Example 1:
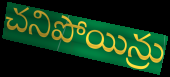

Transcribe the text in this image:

చనిపోయిన్రు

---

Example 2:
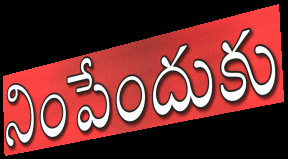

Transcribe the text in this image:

నింపేందుకు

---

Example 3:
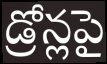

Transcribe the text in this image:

డ్రోన్లపై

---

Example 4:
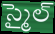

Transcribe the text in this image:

స్మైల్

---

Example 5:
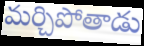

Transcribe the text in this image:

మర్చిపోతాడు